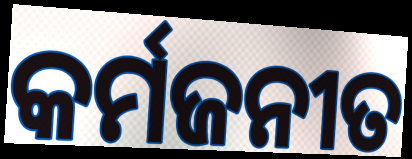
କର୍ମଜନୀତ